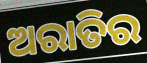
ଅରାତିର